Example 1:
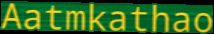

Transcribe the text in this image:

Aatmkathao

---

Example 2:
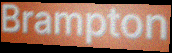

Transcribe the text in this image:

Brampton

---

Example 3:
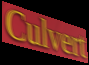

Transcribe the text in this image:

Culvert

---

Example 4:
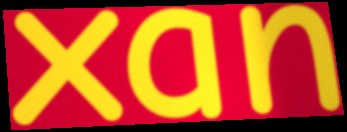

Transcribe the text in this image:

xan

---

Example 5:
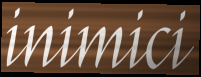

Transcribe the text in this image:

inimici